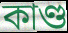
কাণ্ড